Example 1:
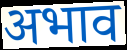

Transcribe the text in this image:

अभाव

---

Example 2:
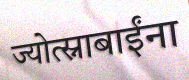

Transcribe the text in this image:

ज्योत्स्नाबाईंना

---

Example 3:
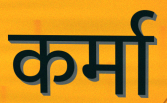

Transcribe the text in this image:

कर्मा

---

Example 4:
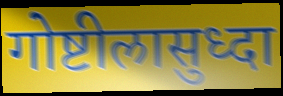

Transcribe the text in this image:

गोष्टीलासुध्दा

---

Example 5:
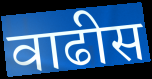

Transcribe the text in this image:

वाढीस